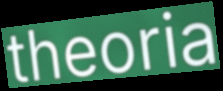
theoria